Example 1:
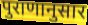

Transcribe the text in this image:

पुराणानुसार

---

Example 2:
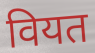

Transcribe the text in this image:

वियत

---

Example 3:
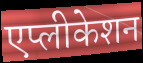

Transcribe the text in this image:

एप्‍लीकेशन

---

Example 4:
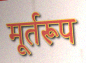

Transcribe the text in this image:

मूर्तरूप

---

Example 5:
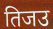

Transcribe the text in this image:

तिजउ